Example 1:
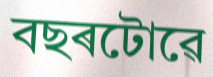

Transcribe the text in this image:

বছৰটোৱে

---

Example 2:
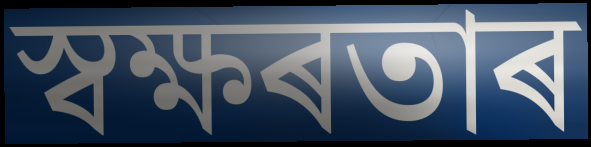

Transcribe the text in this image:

স্বক্ষৰতাৰ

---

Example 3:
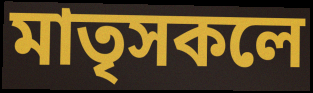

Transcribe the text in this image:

মাতৃসকলে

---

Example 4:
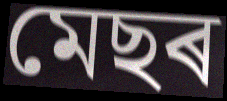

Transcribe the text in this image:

মেছৰ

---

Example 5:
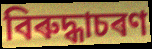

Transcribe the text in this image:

বিৰুদ্ধাচৰণ